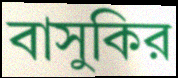
বাসুকির